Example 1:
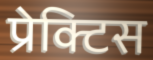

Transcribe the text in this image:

प्रेक्टिस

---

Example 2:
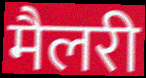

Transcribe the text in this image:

मैलरी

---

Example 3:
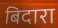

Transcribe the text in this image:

बिदारा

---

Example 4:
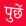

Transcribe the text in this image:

पुछें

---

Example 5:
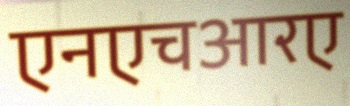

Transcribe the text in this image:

एनएचआरए